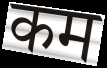
कम